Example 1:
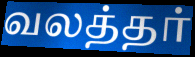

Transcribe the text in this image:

வலத்தர்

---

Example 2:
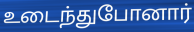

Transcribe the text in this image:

உடைந்துபோனார்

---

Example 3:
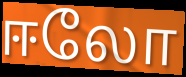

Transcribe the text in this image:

ஈலோ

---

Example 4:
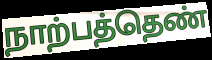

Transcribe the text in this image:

நாற்பத்தெண்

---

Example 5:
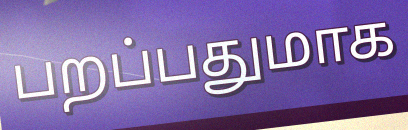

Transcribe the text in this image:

பறப்பதுமாக